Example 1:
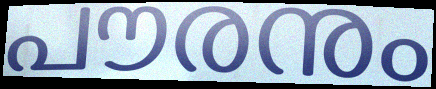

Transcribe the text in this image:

പൗരനും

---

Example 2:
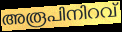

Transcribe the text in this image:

അരൂപിനിറവ്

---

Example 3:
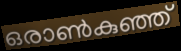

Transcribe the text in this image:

ഒരാൺകുഞ്ഞ്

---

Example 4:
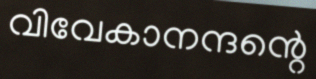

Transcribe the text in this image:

വിവേകാനന്ദന്റെ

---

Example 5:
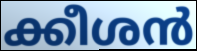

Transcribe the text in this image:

ക്കീശൻ